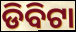
ଡିବିଟା